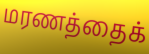
மரணத்தைக்